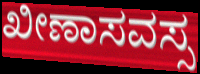
ಖೀಣಾಸವಸ್ಸ